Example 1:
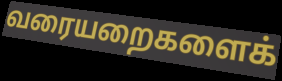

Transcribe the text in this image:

வரையறைகளைக்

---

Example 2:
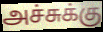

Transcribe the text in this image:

அச்சுக்கு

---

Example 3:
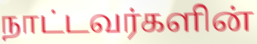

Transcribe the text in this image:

நாட்டவர்களின்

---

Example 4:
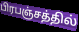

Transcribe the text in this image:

பிரபஞ்சத்தில்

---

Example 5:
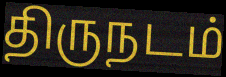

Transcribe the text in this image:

திருநடம்